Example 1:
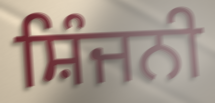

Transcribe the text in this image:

ਸ਼ਿੰਜਨੀ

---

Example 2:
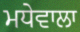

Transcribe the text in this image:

ਮਧੇਵਾਲਾ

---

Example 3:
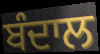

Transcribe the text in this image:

ਬੰਦਾਲ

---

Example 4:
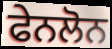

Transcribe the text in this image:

ਫੇਨਲੋਨ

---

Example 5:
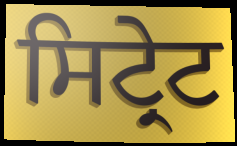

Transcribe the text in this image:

ਸਿਟ੍ਰੇਟ